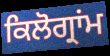
ਕਿਲੋਗ੍ਰਾਂਮ